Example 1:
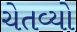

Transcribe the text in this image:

ચેતવ્યો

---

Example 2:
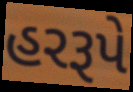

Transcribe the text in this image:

હરરૂપે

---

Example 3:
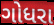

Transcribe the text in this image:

ગોધરા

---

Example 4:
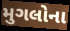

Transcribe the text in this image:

મુગલોના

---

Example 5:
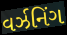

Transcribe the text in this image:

વર્ઝનિંગ